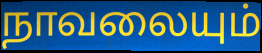
நாவலையும்